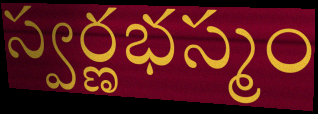
స్వర్ణభస్మం